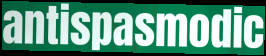
antispasmodic